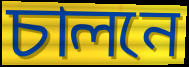
চালনে